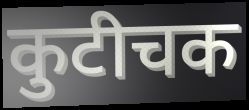
कुटीचक